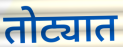
तोट्यात